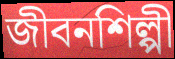
জীবনশিল্পী